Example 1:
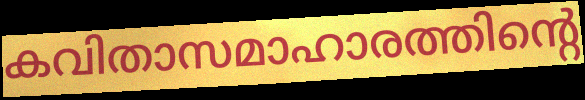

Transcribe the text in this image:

കവിതാസമാഹാരത്തിന്റെ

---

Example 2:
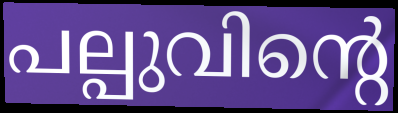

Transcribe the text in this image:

പല്പുവിന്റെ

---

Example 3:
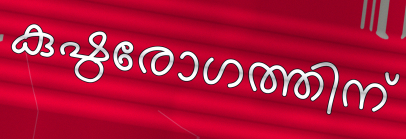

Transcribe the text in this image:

കുഷ്ഠരോഗത്തിന്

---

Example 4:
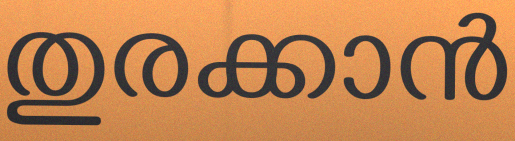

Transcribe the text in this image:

തുരക്കാൻ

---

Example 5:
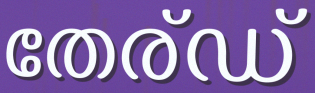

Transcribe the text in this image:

തേര്ഡ്